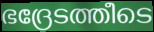
ഭദ്രേടത്തീടെ